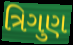
ત્રિગુણ